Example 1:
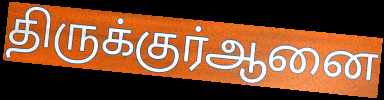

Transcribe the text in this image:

திருக்குர்ஆனை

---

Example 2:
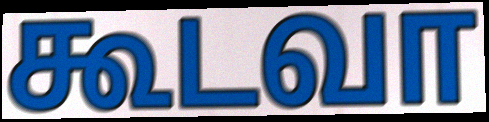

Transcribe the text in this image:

கூடவா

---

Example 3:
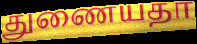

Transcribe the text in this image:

துணையதா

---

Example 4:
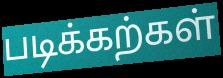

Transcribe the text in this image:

படிக்கற்கள்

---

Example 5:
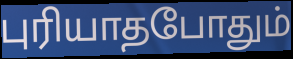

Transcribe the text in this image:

புரியாதபோதும்